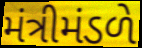
મંત્રીમંડળે